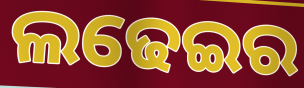
ଲଢେଇର